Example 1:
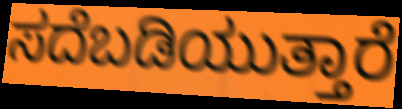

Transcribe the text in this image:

ಸದೆಬಡಿಯುತ್ತಾರೆ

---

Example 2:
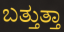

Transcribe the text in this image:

ಬತ್ತುತ್ತಾ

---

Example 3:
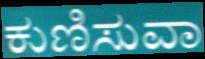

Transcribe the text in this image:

ಕುಣಿಸುವಾ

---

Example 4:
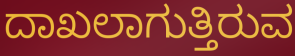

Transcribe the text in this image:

ದಾಖಲಾಗುತ್ತಿರುವ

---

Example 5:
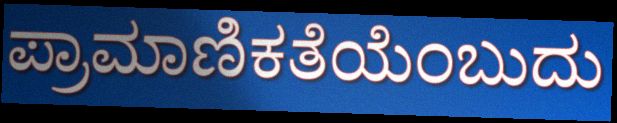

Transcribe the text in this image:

ಪ್ರಾಮಾಣಿಕತೆಯೆಂಬುದು